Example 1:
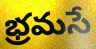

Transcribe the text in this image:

భ్రమసే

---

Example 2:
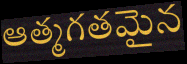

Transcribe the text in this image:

ఆత్మగతమైన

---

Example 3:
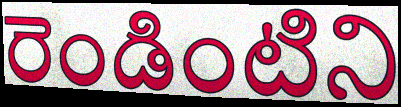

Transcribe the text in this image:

రెండింటిని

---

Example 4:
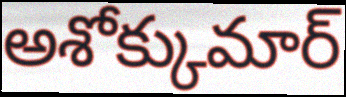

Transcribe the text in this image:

అశోక్కుమార్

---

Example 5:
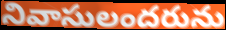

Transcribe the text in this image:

నివాసులందరును